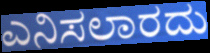
ಎನಿಸಲಾರದು